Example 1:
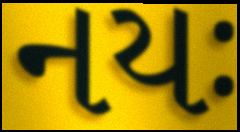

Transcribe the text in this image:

નયઃ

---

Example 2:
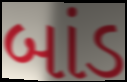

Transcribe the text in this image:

બાંડ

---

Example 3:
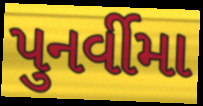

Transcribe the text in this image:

પુનર્વીમા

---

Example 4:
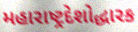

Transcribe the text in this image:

મહારાષ્ટ્રદેશોદ્ધારક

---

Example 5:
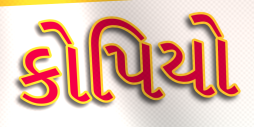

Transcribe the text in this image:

કોપિયો